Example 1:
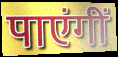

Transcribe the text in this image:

पाएंगीं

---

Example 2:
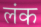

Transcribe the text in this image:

लंक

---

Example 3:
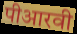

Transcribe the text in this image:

पीआरवी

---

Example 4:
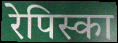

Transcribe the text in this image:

रेपिस्का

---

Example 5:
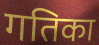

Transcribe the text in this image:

गतिका